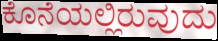
ಕೊನೆಯಲ್ಲಿರುವುದು